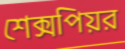
শেক্সপিয়র